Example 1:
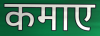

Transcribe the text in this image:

कमाए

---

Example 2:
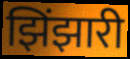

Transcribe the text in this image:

झिंझारी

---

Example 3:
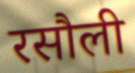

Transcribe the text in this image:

रसौली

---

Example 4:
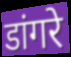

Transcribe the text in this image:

डांगरे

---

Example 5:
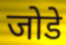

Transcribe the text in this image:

जोडे